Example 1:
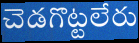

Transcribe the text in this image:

చెడగొట్టలేరు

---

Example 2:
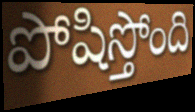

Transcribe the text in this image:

పోషిస్తోంది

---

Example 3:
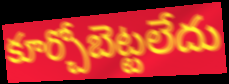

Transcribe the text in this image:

కూర్చోబెట్టలేదు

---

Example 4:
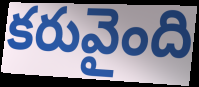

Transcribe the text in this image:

కరువైంది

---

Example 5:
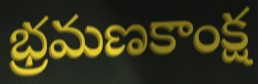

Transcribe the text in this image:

భ్రమణకాంక్ష